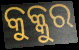
କୁକ୍କୁର